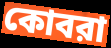
কোবরা